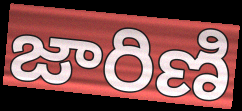
జారిణి